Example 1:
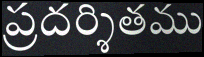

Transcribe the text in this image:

ప్రదర్శితము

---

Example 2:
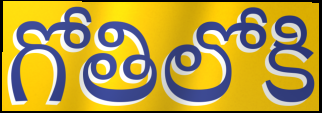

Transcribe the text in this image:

గోతిలోకి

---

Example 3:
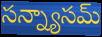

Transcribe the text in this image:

సన్న్యాసమ్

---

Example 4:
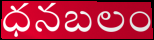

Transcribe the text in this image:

ధనబలం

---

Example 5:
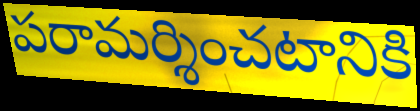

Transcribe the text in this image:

పరామర్శించటానికి